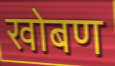
खोबण